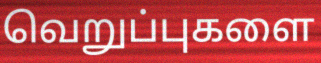
வெறுப்புகளை